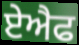
ਏਐਫ